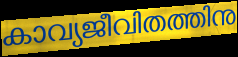
കാവ്യജീവിതത്തിനു